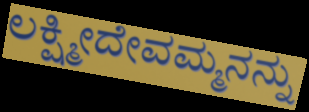
ಲಕ್ಷ್ಮೀದೇವಮ್ಮನನ್ನು